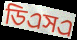
ডিএসএ